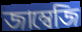
জাম্বেজি